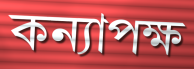
কন্যাপক্ষ